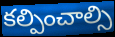
కల్పించాల్సి